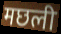
मछली